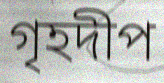
গৃহদীপ